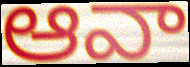
ఆవా